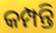
କମ୍ପନ୍ତି